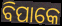
ବିପାକେ